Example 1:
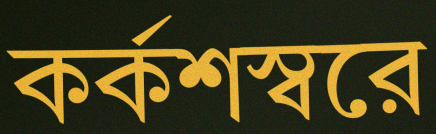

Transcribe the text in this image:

কর্কশস্বরে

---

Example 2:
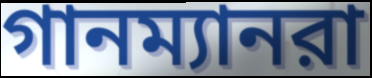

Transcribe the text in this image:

গানম্যানরা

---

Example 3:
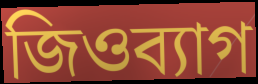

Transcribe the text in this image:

জিওব্যাগ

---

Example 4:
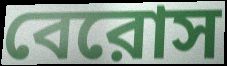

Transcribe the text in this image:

বেরোস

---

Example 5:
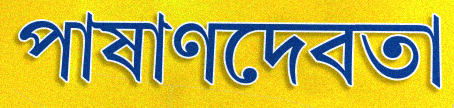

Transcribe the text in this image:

পাষাণদেবতা